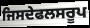
ਜਿਸਦੇਫਲਸਰੂਪ